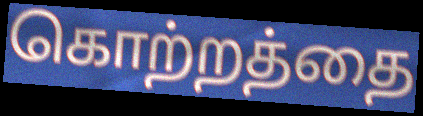
கொற்றத்தை